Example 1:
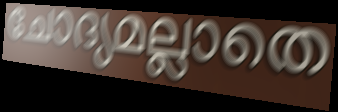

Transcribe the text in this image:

ചോദ്യമല്ലാതെ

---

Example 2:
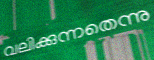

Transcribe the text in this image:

വലിക്കുന്നതെന്നു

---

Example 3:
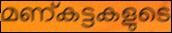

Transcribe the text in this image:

മണ്കട്ടകളുടെ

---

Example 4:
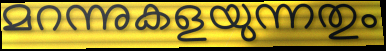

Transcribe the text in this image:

മറന്നുകളയുന്നതും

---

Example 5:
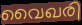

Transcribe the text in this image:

വൈഖരി